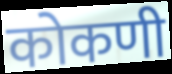
कोकणी